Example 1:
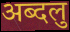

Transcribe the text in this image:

अब्दलु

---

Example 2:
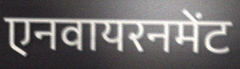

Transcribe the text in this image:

एनवायरनमेंट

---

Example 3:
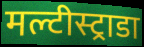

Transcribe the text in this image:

मल्टीस्ट्राडा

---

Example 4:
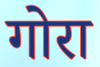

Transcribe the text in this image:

गोरा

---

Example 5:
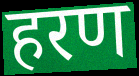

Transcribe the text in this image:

हरण